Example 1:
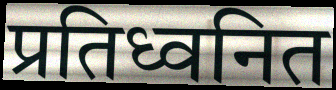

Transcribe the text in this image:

प्रतिध्वनित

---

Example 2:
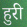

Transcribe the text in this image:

हुरी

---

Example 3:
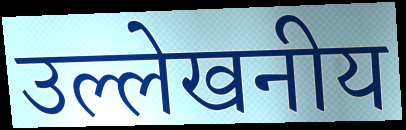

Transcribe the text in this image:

उल्लेखनीय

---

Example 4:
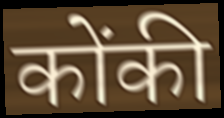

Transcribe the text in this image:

कोंकी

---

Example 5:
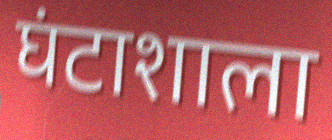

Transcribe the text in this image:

घंटाशाला